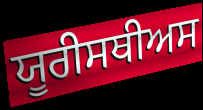
ਯੂਰੀਸਥੀਅਸ